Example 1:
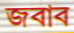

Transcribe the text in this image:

জবাব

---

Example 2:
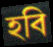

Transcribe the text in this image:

হবি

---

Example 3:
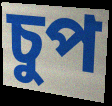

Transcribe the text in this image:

চুপ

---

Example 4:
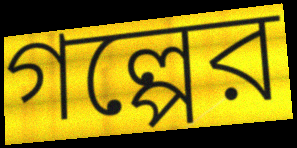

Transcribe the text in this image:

গল্পের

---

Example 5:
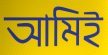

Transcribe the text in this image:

আমিই